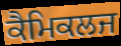
ਕੈਮਿਕਲਜ